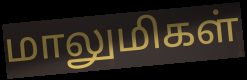
மாலுமிகள்